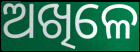
ଅଖିଳେ